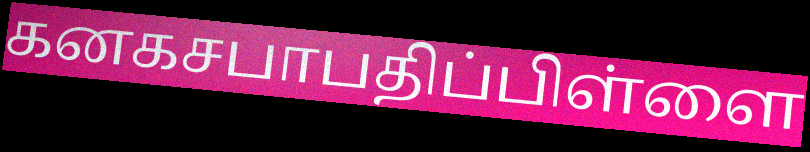
கனகசபாபதிப்பிள்ளை